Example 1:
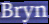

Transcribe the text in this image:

Bryn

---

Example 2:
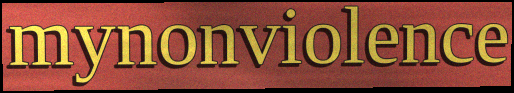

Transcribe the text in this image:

mynonviolence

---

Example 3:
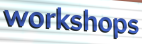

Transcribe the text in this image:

workshops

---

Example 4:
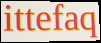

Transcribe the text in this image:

ittefaq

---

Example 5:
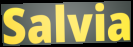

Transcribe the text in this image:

Salvia